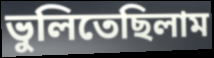
ভুলিতেছিলাম